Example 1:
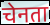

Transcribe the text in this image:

चेनता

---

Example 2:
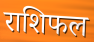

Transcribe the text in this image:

राशिफल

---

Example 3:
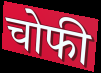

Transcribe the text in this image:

चोफी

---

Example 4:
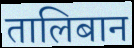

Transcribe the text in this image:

तालिबान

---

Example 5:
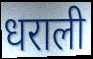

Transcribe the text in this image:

धराली